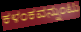
ಕಳಂಕವನ್ನುಂಟು